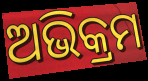
ଅଭିକ୍ରମ